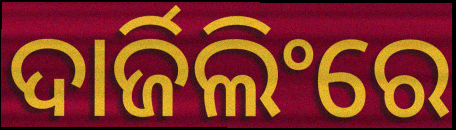
ଦାର୍ଜିଲିଂରେ